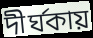
দীর্ঘকায়